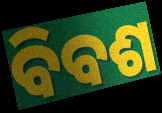
ବିବଶ